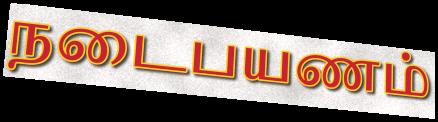
நடைபயணம்